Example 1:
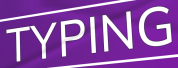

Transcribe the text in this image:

TYPING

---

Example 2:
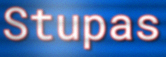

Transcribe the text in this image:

Stupas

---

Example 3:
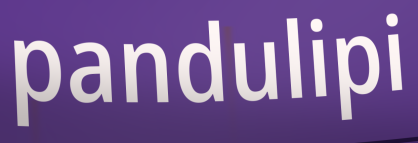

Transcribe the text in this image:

pandulipi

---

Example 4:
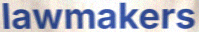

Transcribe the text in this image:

lawmakers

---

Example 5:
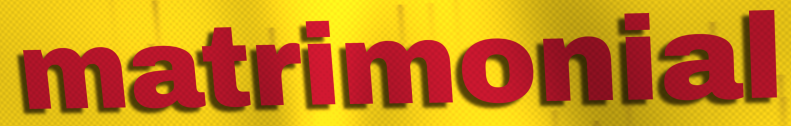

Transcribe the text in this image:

matrimonial